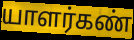
யாளர்கண்